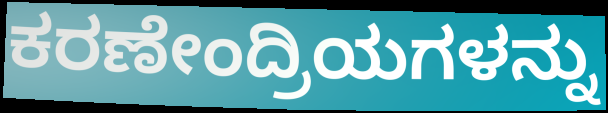
ಕರಣೇಂದ್ರಿಯಗಳನ್ನು